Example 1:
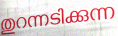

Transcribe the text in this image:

തുറന്നടിക്കുന്ന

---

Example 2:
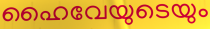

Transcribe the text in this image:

ഹൈവേയുടെയും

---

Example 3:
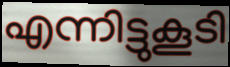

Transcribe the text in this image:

എന്നിട്ടുകൂടി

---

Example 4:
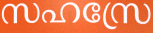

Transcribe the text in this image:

സഹസ്രേ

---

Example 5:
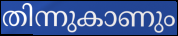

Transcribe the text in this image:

തിന്നുകാണും